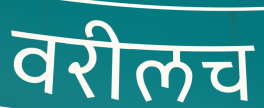
वरीलच